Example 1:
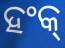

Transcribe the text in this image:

ହଂକ୍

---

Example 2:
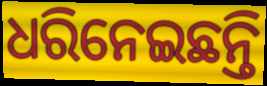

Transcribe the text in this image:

ଧରିନେଇଛନ୍ତି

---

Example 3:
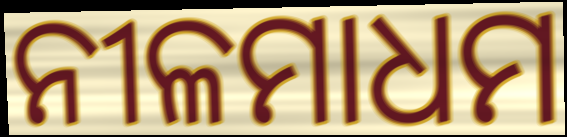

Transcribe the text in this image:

ନୀଳମାଧମ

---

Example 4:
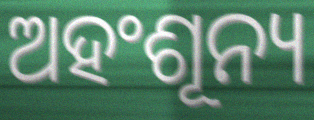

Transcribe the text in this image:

ଅହଂଶୂନ୍ୟ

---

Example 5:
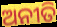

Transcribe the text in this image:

ଅନୀତି